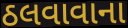
ઠલવાવાના